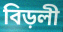
বিড়লী